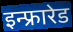
इन्फ्रारेड